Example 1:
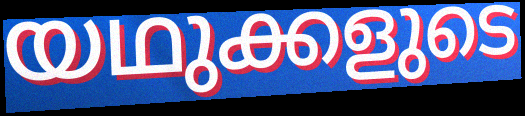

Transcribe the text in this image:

യഥുക്കളുടെ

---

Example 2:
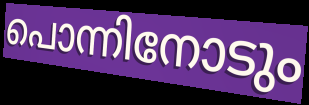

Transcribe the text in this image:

പൊന്നിനോടും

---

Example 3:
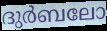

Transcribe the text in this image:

ദുർബലോ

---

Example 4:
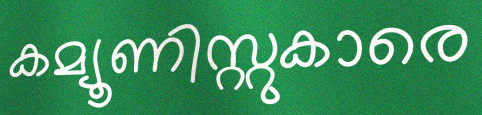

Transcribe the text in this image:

കമ്യൂണിസ്റ്റുകാരെ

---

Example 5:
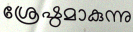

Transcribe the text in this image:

ശ്രേഷ്ഠമാകുന്നു